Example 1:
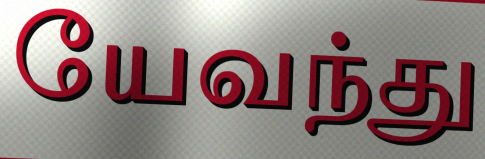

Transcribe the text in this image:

யேவந்து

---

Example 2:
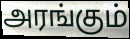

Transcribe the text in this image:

அரங்கும்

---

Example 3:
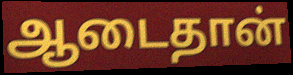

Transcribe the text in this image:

ஆடைதான்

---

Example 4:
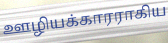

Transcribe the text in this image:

ஊழியக்காரராகிய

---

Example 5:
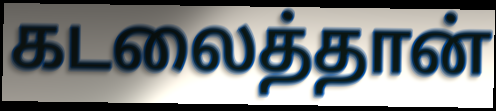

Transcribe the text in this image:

கடலைத்தான்